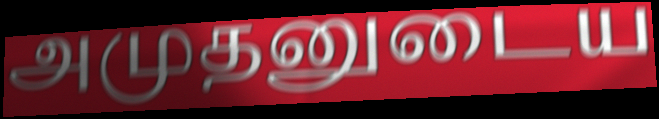
அமுதனுடைய